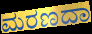
ಮರಣದಾ